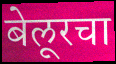
बेलूरचा